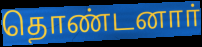
தொண்டனார்